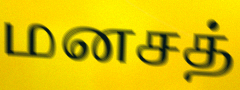
மனசத்